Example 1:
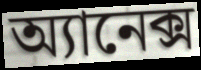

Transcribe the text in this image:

অ্যানেক্স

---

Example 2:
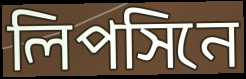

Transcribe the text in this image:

লিপসিনে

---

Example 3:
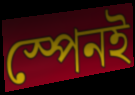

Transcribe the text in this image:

স্পেনই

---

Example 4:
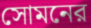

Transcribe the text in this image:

সোমনের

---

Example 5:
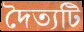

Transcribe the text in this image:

দৈত্যটি